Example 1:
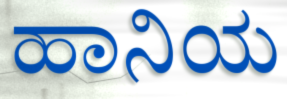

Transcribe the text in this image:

ಹಾನಿಯ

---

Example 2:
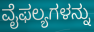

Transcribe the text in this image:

ವೈಫಲ್ಯಗಳನ್ನು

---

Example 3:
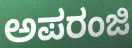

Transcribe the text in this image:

ಅಪರಂಜಿ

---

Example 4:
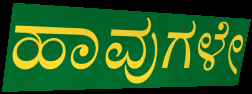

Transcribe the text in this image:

ಹಾವುಗಳೇ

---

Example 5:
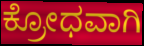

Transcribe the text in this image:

ಕ್ರೋಧವಾಗಿ